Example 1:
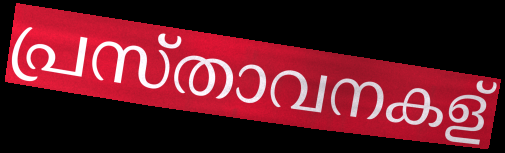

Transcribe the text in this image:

പ്രസ്താവനകള്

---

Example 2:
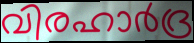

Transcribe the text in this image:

വിരഹാർദ്ര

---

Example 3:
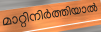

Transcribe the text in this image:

മാറ്റിനിർത്തിയാൽ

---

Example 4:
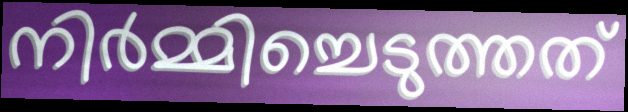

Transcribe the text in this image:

നിർമ്മിച്ചെടുത്തത്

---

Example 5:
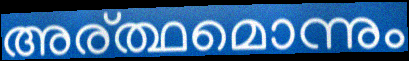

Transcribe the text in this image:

അര്ത്ഥമൊന്നും